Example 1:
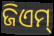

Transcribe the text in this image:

ଜିଏମ୍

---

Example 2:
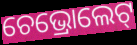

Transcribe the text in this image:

ଚେଭ୍ରୋଲେଟ୍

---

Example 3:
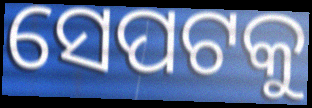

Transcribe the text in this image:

ସେପଟକୁ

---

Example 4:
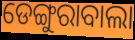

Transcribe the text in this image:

ଡେଙ୍ଗୁରାବାଲା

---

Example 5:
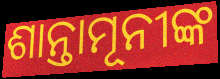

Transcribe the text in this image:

ଶାନ୍ତାମୂନୀଙ୍କ